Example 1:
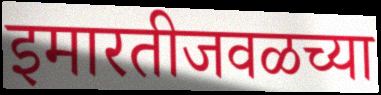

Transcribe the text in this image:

इमारतीजवळच्या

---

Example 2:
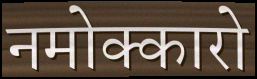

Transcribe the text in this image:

नमोक्कारो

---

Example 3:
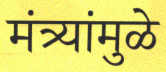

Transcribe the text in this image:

मंत्र्यांमुळे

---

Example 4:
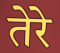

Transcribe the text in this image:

तेरे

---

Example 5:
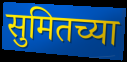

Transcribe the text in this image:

सुमितच्या